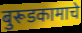
बुरूडकामाचे